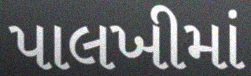
પાલખીમાં